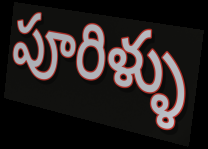
పూరిళ్ళు